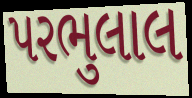
પરભુલાલ